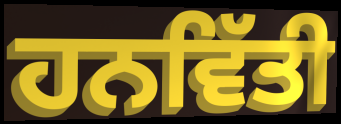
ਹਨਵਿੱਤੀ